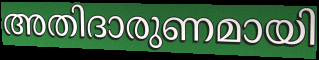
അതിദാരുണമായി